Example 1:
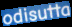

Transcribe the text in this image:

odisutta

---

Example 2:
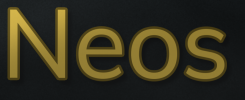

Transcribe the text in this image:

Neos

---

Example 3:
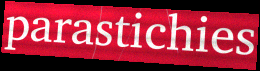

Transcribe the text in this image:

parastichies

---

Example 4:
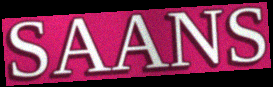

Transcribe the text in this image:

SAANS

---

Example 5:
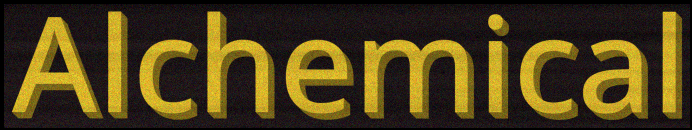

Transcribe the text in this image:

Alchemical